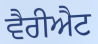
ਵੈਰੀਐਟ